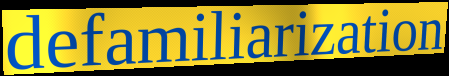
defamiliarization